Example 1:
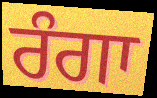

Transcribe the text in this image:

ਰੰਗਾ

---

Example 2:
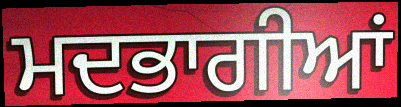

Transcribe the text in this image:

ਮਦਭਾਗੀਆਂ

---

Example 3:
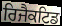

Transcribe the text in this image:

ਰਿਜੈਕਟਿਡ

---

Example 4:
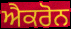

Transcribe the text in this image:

ਐਕਰੋਨ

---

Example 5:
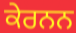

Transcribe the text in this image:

ਕੇਰਨਨ